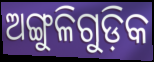
ଅଙ୍ଗୁଳିଗୁଡ଼ିକ